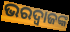
ଭରଦ୍ବାଜଙ୍କ